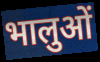
भालुओं